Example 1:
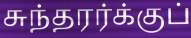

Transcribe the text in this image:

சுந்தரர்க்குப்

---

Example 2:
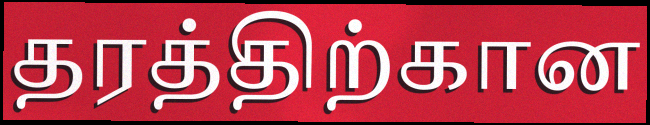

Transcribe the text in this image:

தரத்திற்கான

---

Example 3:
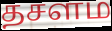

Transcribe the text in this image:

தசளம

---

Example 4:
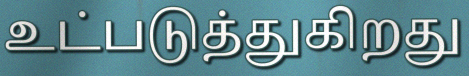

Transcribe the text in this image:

உட்படுத்துகிறது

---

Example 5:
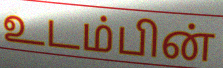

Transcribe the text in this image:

உடம்பின்